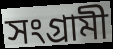
সংগ্ৰামী